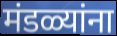
मंडळ्यांना